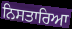
ਨਿਸਤਾਰਿਆ